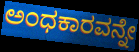
ಅಂಧಕಾರವನ್ನೇ